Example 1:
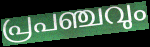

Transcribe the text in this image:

പ്രപഞ്ചവും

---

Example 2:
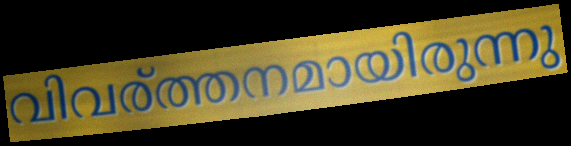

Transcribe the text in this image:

വിവര്ത്തനമായിരുന്നു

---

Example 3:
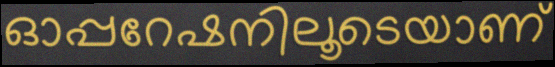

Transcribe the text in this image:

ഓപ്പറേഷനിലൂടെയാണ്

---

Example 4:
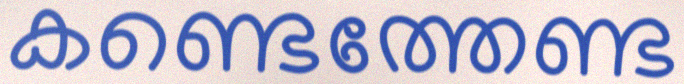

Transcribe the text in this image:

കണ്ടെത്തേണ്ട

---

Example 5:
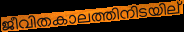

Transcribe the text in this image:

ജീവിതകാലത്തിനിടയില്